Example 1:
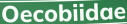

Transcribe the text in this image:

Oecobiidae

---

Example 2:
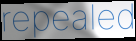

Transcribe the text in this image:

repealed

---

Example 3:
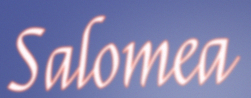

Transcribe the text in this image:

Salomea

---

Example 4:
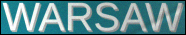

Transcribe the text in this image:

WARSAW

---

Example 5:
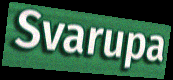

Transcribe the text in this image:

Svarupa